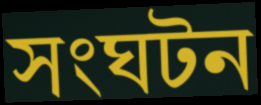
সংঘটন